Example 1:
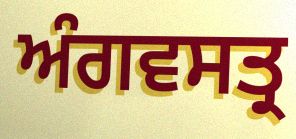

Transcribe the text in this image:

ਅੰਗਵਸਤ੍ਰ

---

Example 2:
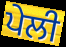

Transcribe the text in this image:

ਪੇਲੀ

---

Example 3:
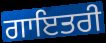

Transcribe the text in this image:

ਗਾਇਤਰੀ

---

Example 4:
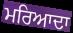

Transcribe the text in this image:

ਮਰਿਆਦਾ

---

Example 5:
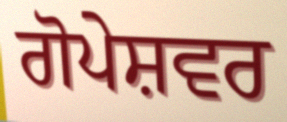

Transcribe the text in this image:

ਗੋਪੇਸ਼ਵਰ